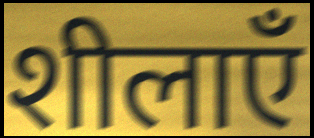
शीलाएँ